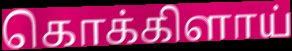
கொக்கிளாய்